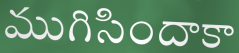
ముగిసిందాకా